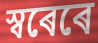
স্বৰেৰে